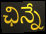
ఛిన్నే